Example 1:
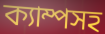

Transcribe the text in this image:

ক্যাম্পসহ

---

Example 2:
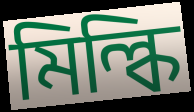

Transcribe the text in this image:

মিল্কি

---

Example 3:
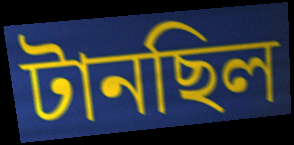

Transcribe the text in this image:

টানছিল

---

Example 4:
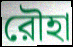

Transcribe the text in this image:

রৌহা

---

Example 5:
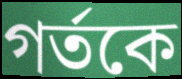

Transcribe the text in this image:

গর্তকে